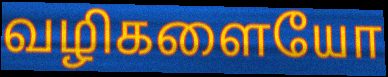
வழிகளையோ